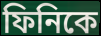
ফিনিকে